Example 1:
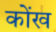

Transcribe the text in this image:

कोंख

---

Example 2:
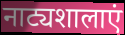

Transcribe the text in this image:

नाट्यशालाएं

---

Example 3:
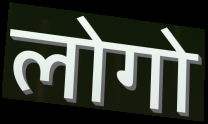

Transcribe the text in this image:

लोगो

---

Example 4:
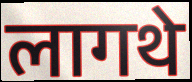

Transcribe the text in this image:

लागथे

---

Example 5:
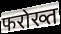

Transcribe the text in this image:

फरोख्त